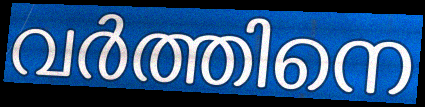
വർത്തിനെ